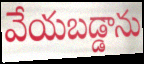
వేయబడ్డాను